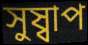
সুষ্বাপ